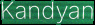
Kandyan